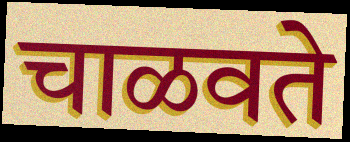
चाळवते